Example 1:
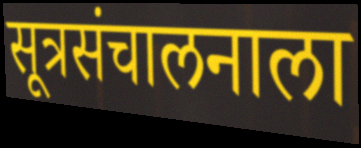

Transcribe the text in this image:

सूत्रसंचालनाला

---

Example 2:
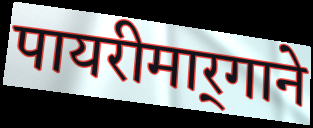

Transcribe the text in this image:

पायरीमार्गाने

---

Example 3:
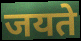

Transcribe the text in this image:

जयते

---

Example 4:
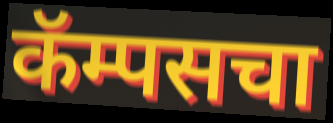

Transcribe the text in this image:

कॅम्पसचा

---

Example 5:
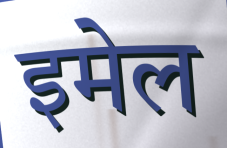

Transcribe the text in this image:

इमेल